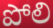
పోలి